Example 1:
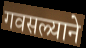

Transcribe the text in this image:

गवसल्याने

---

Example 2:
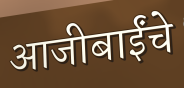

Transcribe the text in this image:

आजीबाईंचे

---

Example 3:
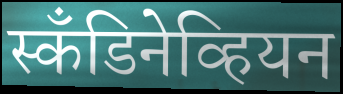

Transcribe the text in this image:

स्कँडिनेव्हियन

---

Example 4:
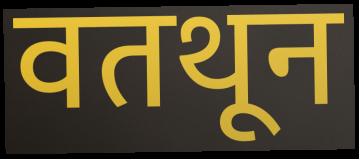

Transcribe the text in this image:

वतथून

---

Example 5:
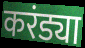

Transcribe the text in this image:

करंड्या